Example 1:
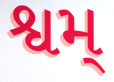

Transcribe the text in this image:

શ્વમ્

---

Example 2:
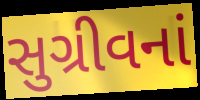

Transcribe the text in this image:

સુગ્રીવનાં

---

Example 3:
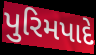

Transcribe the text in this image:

પુરિમપાદે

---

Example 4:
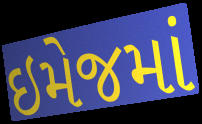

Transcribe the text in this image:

ઇમેજમાં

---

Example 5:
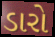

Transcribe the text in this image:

ડારો